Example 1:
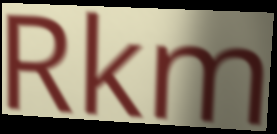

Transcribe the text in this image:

Rkm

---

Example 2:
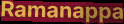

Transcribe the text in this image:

Ramanappa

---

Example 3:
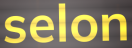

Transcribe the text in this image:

selon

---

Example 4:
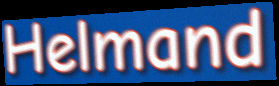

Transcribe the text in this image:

Helmand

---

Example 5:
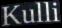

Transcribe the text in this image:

Kulli